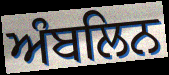
ਅੰਬਲਿਨ